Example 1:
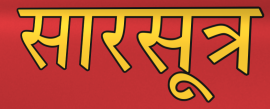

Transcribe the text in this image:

सारसूत्र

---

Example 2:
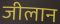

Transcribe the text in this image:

जीलान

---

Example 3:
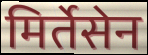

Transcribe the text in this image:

मिर्तेसेन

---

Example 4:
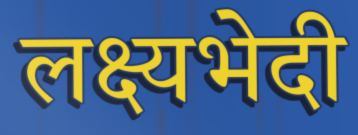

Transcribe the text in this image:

लक्ष्यभेदी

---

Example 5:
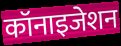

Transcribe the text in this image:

कॉनाइजेशन